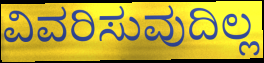
ವಿವರಿಸುವುದಿಲ್ಲ